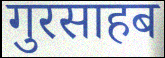
गुरसाहब